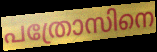
പത്രോസിനെ